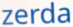
zerda